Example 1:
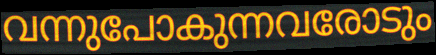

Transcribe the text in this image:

വന്നുപോകുന്നവരോടും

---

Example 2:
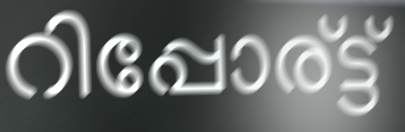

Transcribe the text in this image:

റിപ്പോര്ട്ട്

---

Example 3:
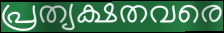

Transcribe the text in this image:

പ്രത്യക്ഷതവരെ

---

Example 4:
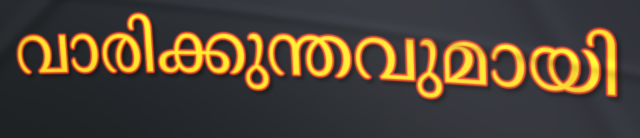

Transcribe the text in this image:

വാരിക്കുന്തവുമായി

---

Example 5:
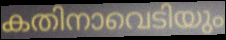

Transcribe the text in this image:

കതിനാവെടിയും